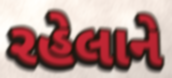
રહેલાને